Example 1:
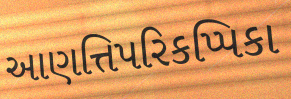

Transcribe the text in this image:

આણત્તિપરિકપ્પિકા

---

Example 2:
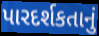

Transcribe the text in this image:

પારદર્શકતાનું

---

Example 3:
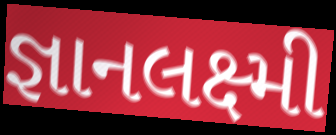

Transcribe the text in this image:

જ્ઞાનલક્ષ્મી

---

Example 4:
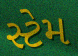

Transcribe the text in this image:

સ્ટેમ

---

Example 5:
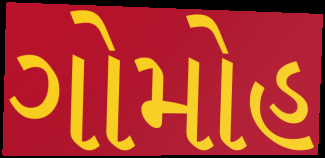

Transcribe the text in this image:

ગોમોહ